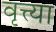
वृत्त्या